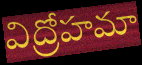
విద్రోహమా